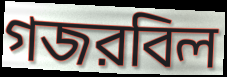
গজরবিল